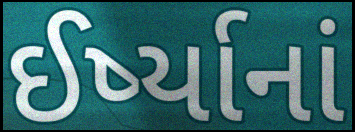
ઈર્ષ્યાનાં